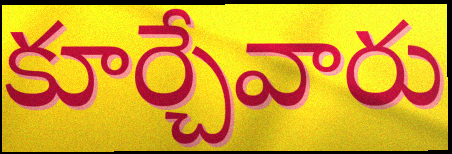
కూర్చేవారు